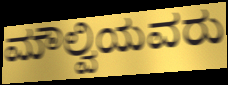
ಮೌಲ್ವಿಯವರು